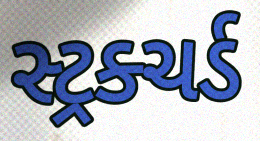
સ્ટ્રક્ચર્ડ